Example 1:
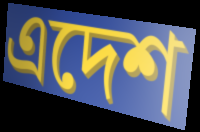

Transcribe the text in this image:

এদেশ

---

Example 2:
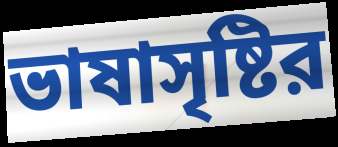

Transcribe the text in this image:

ভাষাসৃষ্টির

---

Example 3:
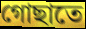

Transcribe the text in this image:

গোছাতে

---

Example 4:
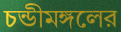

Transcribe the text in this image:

চন্ডীমঙ্গলের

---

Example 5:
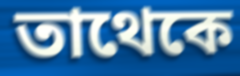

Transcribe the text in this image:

তাথেকে